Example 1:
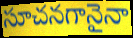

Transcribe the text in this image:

సూచనగానైనా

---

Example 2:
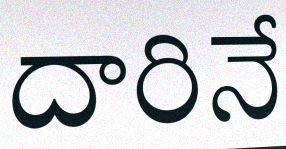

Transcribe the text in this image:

దారినే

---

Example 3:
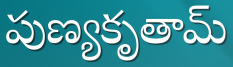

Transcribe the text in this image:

పుణ్యకృతామ్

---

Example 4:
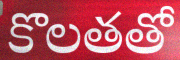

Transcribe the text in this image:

కొలతతో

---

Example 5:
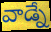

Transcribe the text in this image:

వాడ్నే